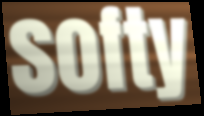
softy